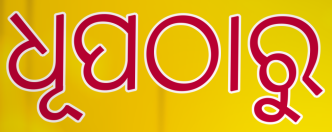
ଧୂପଠାରୁ